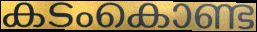
കടംകൊണ്ട